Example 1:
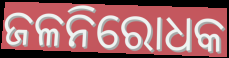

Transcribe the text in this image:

ଜଳନିରୋଧକ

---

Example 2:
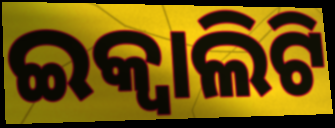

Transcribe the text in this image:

ଇକ୍ୱାଲିଟି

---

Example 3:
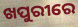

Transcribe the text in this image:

ଖପୁରୀରେ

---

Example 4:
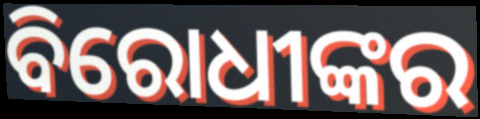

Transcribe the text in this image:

ବିରୋଧୀଙ୍କର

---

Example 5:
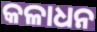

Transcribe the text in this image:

କଳାଧନ